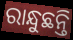
ରାନ୍ଧୁଛନ୍ତି